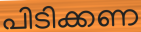
പിടിക്കണ